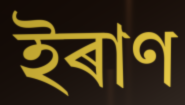
ইৰাণ